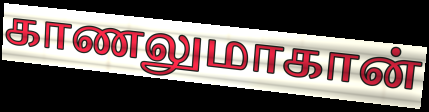
காணலுமாகான்